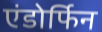
एंडोर्फिन